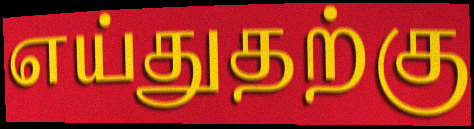
எய்துதற்கு